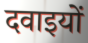
दवाइयों